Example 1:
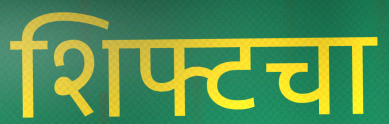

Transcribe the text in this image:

शिफ्टचा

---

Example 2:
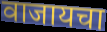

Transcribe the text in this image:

वाजायचा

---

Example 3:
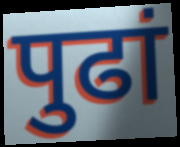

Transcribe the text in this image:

पुढां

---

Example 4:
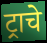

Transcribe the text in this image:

ट्राचे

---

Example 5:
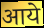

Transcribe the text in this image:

आये